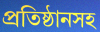
প্রতিষ্ঠানসহ